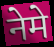
नेमे